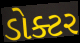
ડોક્ટર